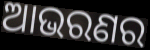
ଆଭରଣର